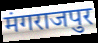
मंगराजपुर